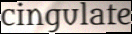
cingulate